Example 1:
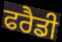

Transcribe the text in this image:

ਫਰੈਡੀ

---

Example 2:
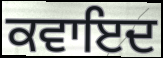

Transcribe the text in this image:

ਕਵਾਇਦ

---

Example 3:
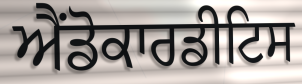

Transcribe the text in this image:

ਐਂਡੋਕਾਰਡੀਟਿਸ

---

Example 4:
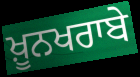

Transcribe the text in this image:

ਖ਼ੂਨਖਰਾਬੇ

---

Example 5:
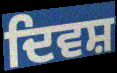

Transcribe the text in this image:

ਦਿਵਸ਼